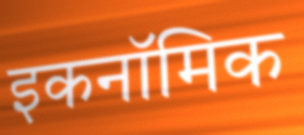
इकनॉमिक